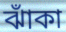
ঝাঁকা